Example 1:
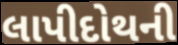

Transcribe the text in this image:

લાપીદોથની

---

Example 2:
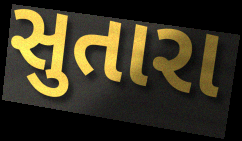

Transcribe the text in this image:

સુતારા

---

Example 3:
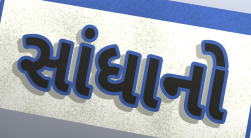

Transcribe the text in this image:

સાંધાનો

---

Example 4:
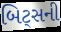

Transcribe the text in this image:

બિટ્સની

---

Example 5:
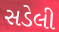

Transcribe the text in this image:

સડેલી